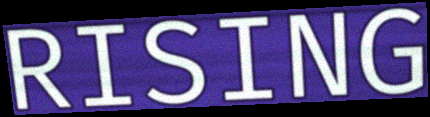
RISING